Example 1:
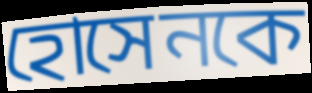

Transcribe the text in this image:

হোসেনকে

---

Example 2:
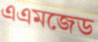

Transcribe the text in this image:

এএমজেড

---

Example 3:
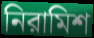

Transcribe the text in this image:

নিরামিশ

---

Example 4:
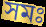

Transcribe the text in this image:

সমঃ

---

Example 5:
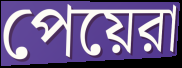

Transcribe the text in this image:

পেয়েরা